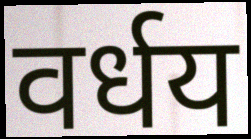
वर्धय